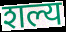
शल्य